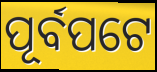
ପୂର୍ବପଟେ